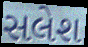
સલેશ